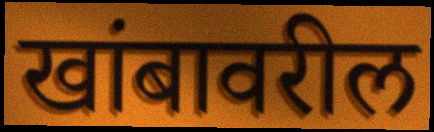
खांबावरील